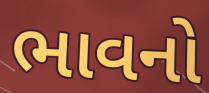
ભાવનો